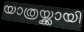
യാത്രയ്ക്കായി